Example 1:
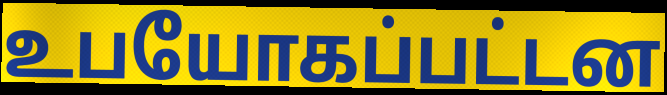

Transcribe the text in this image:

உபயோகப்பட்டன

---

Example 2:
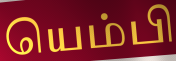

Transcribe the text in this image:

யெம்பி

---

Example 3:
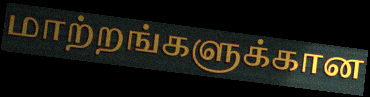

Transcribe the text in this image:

மாற்றங்களுக்கான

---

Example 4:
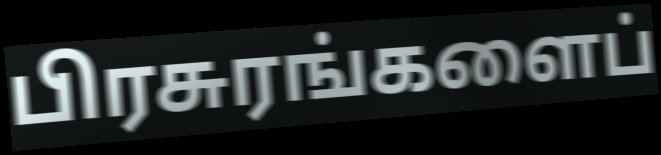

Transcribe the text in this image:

பிரசுரங்களைப்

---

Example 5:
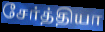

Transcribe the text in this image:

சேர்த்தியா